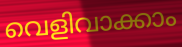
വെളിവാക്കാം